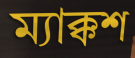
ম্যাক্কশ